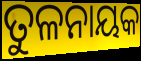
ତୁଳନାୟକ